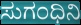
ಸುಗಂಧಿನಿ